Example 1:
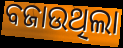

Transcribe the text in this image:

ବଜାଉଥିଲା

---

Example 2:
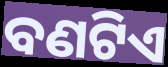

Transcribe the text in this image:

ବଣଟିଏ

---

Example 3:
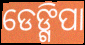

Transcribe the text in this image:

ଡେଙ୍ଗିପା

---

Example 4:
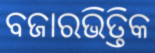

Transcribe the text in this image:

ବଜାରଭିତ୍ତିକ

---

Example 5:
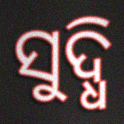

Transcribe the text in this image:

ସୁଦ୍ଧି